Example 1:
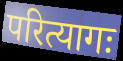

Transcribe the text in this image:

परित्यागः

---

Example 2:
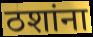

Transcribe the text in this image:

ठशांना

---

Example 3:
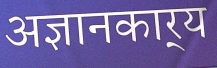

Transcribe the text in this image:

अज्ञानकार्य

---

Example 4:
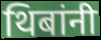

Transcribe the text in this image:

थिबांनी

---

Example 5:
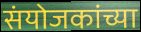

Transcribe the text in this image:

संयोजकांच्या